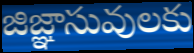
జిజ్ఞాసువులకు